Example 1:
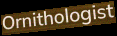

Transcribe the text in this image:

Ornithologist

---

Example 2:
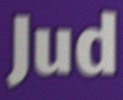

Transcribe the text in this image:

Jud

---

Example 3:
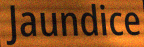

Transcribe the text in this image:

Jaundice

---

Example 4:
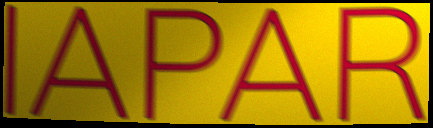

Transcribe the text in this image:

IAPAR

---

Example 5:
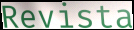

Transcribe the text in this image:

Revista